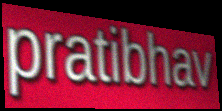
pratibhav